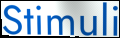
Stimuli